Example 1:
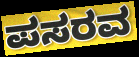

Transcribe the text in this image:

ಪಸರವ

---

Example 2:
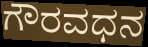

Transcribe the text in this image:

ಗೌರವಧನ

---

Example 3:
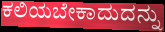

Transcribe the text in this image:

ಕಲಿಯಬೇಕಾದುದನ್ನು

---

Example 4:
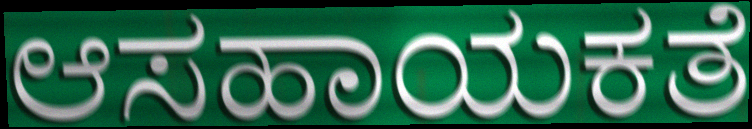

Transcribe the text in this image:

ಆಸಹಾಯಕತೆ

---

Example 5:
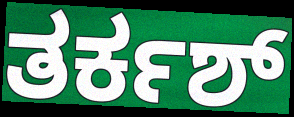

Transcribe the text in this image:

ತರ್ಕಶ್